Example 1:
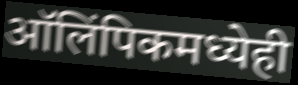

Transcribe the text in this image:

ऑलिंपिकमध्येही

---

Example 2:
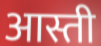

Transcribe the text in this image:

आस्ती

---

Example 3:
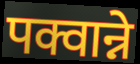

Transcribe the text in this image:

पक्वान्ने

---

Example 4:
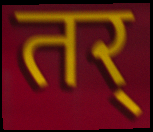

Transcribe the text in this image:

तर्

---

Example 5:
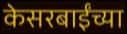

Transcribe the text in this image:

केसरबाईंच्या